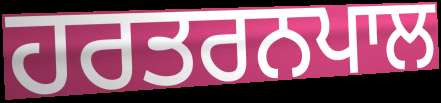
ਹਰਤਰਨਪਾਲ